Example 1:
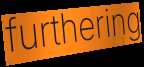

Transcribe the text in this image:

furthering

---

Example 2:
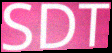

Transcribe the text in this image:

SDT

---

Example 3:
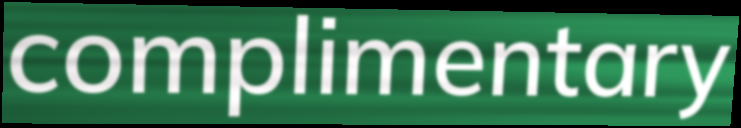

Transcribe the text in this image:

complimentary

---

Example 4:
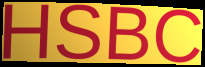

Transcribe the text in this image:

HSBC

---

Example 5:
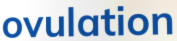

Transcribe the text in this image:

ovulation